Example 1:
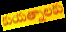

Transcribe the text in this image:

కుయత్నాలకు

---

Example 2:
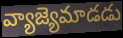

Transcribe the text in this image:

వ్యాజ్యెమాడడు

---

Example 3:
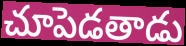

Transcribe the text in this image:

చూపెడతాడు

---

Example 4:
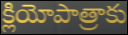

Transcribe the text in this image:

క్లియోపాత్రాకు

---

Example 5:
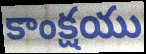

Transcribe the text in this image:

కాంక్షయు